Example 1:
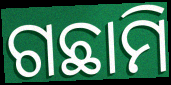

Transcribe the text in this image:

ଗଛାମି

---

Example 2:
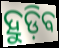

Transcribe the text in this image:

ହୁଡ଼ିବ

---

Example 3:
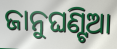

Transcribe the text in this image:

ଜାନୁଘଣ୍ଟିଆ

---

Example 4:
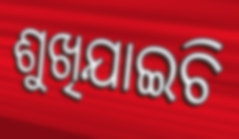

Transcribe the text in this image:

ଶୁଖିଯାଇଚି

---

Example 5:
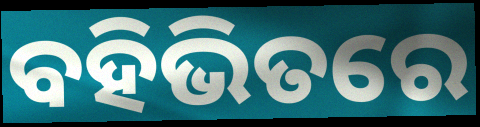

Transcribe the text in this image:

ବହିଭିତରେ